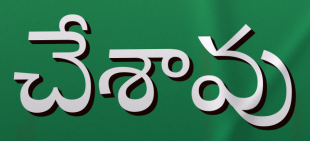
చేశావు